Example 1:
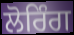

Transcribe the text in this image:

ਲੋਰਿੰਗ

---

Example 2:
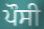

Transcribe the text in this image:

ਪੌਸੀ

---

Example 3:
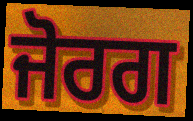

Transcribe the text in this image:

ਜੋਰਗ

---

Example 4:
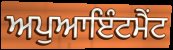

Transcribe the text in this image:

ਅਪੁਆਇੰਟਮੈਂਟ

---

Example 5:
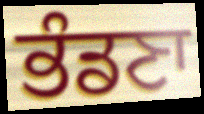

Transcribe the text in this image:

ਭੰਡਣਾ